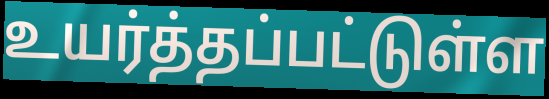
உயர்த்தப்பட்டுள்ள